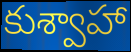
కుశ్వాహా